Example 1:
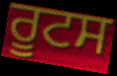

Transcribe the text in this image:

ਰੂਟਸ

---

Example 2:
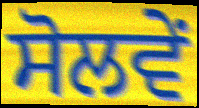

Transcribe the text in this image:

ਸੋਲਵੇਂ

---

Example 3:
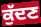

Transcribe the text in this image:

ਕੁੱਦਣ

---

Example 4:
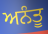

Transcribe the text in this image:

ਅਨੰਤੂ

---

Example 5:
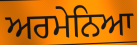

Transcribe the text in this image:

ਅਰਮੇਨਿਆ